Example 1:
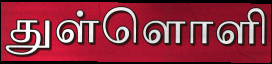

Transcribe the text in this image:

துள்ளொளி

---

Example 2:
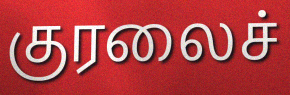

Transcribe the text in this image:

குரலைச்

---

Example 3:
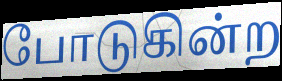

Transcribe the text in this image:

போடுகின்ற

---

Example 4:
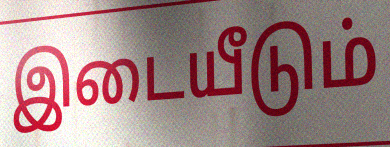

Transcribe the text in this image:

இடையீடும்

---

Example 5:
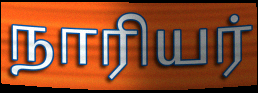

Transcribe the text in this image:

நாரியர்